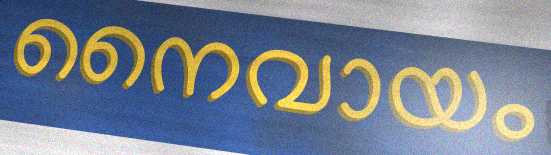
നൈവായം